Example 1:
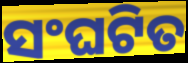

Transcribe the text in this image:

ସଂଘଟିତ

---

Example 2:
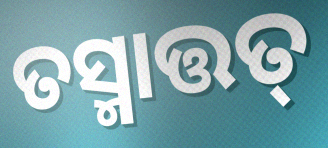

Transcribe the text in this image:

ତସ୍ମାତ୍ତତ୍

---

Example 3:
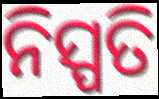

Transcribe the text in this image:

ନିସ୍ପତି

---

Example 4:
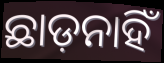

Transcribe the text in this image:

ଛାଡ଼ନାହିଁ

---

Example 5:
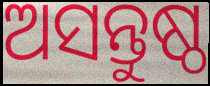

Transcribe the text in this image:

ଅସନ୍ତୁଷ୍ଠ